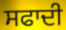
ਸਫਾਦੀ